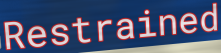
Restrained